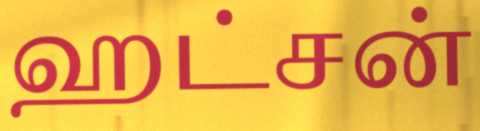
ஹட்சன்